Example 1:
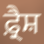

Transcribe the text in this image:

ਫ਼੍ਰੈਸ਼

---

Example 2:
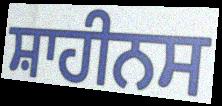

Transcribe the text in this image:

ਸ਼ਾਹੀਨਸ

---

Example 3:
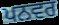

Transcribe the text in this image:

ਪਨਵਰ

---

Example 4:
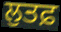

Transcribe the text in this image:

ਲੁਤਫ਼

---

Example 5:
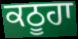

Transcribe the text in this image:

ਕਠੂਹਾ